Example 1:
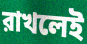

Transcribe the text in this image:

রাখলেই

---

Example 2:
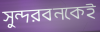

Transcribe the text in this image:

সুন্দরবনকেই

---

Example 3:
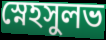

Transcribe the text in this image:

স্নেহসুলভ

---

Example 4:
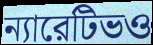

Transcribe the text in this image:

ন্যারেটিভও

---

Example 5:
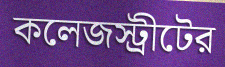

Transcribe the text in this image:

কলেজস্ট্রীটের